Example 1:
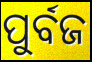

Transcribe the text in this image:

ପୁର୍ବଜ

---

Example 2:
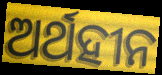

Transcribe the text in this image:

ଅର୍ଥହୀନ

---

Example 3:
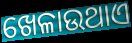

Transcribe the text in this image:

ଖେଳାଉଥାଏ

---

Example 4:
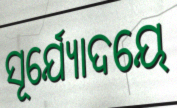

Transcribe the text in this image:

ସୂର୍ଯ୍ୟୋଦୟେ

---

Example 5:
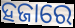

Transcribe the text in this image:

ହଜାରେ